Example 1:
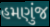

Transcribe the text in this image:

હમણુંજ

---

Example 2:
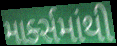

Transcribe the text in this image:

માર્ક્સમાંથી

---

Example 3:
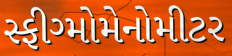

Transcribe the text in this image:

સ્ફીગ્મોમેનોમીટર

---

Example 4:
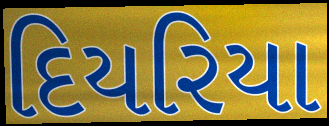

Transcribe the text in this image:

દિયરિયા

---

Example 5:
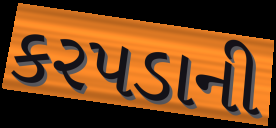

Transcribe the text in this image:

કરપડાની